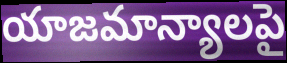
యాజమాన్యాలపై